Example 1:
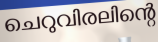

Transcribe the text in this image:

ചെറുവിരലിന്റെ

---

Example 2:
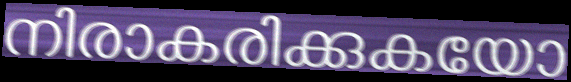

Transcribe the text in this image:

നിരാകരിക്കുകയോ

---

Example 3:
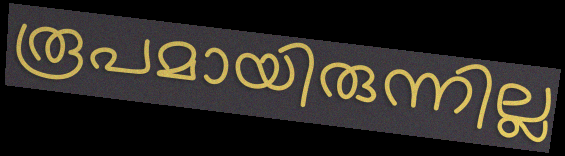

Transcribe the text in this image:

രൂപമായിരുന്നില്ല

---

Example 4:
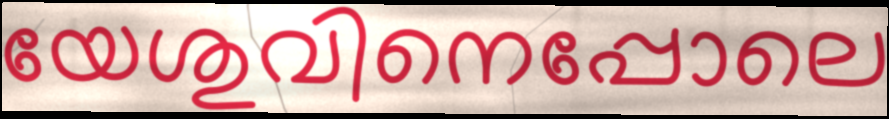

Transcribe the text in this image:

യേശുവിനെപ്പോലെ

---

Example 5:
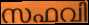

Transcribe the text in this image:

സഫവി